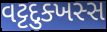
વટ્ટદુક્ખસ્સ